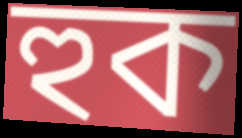
হুক